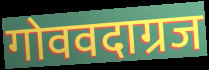
गोववदाग्रज